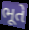
ભૂતે